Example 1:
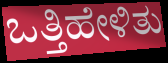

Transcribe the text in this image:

ಒತ್ತಿಹೇಳಿತು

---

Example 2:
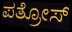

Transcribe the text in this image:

ಪತ್ರೋಸ್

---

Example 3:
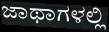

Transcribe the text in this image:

ಜಾಥಾಗಳಲ್ಲಿ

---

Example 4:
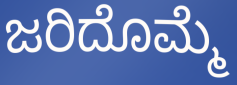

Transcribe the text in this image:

ಜರಿದೊಮ್ಮೆ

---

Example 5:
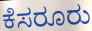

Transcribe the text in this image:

ಕೆಸರೂರು